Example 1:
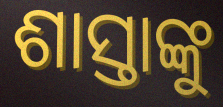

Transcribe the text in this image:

ଶାସ୍ତାଙ୍କୁ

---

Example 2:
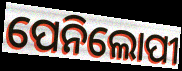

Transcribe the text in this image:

ପେନିଲୋପୀ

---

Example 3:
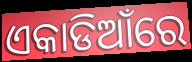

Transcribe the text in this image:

ଏକାଡିଆଁରେ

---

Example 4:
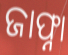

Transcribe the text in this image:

ଜାଫ୍ନା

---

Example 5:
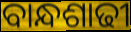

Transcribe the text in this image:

ବାନ୍ଧଶାଢୀ